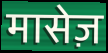
मासेज़